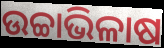
ଉଚ୍ଚାଭିଳାଷ